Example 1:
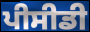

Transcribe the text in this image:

ਪੀਸੀਡੀ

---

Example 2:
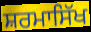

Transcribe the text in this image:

ਸ਼ਰਮਾਸਿੱਖ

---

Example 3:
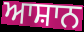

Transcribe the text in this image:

ਆਸ਼ਾਨ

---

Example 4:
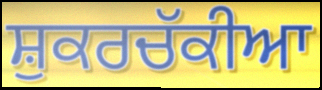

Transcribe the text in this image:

ਸ਼ੁਕਰਚੱਕੀਆ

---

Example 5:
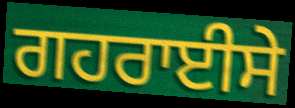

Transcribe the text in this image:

ਗਹਰਾਈਸੇ